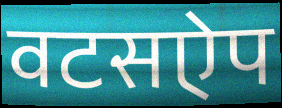
वटसऐप